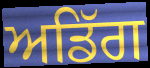
ਅਡਿੱਗ